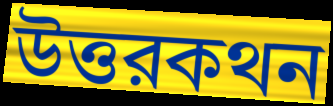
উত্তরকথন